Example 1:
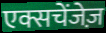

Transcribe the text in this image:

एक्सचेंजेज़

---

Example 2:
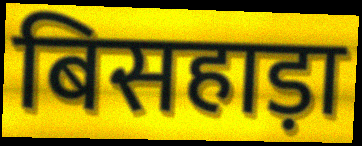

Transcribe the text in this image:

बिसहाड़ा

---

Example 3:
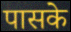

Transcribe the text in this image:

पासके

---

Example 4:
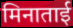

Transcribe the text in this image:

मिनाताई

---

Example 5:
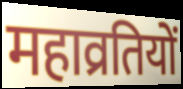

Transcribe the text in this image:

महाव्रतियों